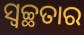
ସ୍ଵଚ୍ଛତାର